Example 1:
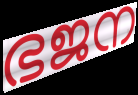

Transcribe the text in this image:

ഭജന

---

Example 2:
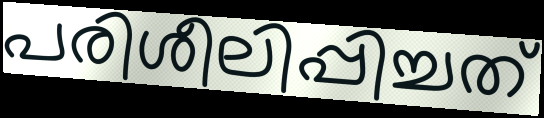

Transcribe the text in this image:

പരിശീലിപ്പിച്ചത്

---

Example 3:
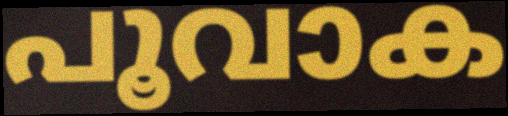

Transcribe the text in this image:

പൂവാക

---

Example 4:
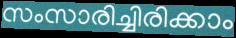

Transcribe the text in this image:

സംസാരിച്ചിരിക്കാം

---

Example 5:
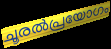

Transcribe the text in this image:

ചൂരൽപ്രയോഗം